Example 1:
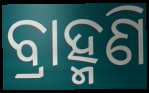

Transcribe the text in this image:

ବ୍ରାହ୍ମଣି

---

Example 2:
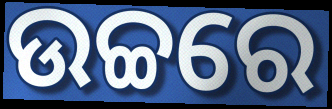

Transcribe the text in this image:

ଉଚ୍ଚରେ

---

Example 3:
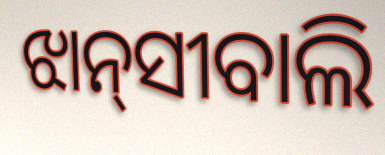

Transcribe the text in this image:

ଝାନ୍‌ସୀବାଲି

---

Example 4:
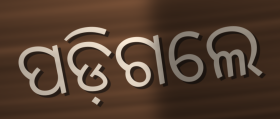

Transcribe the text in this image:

ପଡ଼ିଗଲେ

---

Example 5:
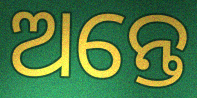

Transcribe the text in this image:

ଅନ୍ତେ